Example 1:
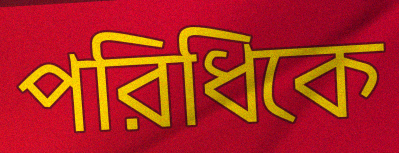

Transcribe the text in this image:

পরিধিকে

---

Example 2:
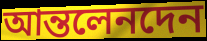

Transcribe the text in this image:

আন্তলেনদেন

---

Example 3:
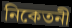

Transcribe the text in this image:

নিকেতনী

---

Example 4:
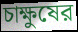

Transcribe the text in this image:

চাক্ষুষের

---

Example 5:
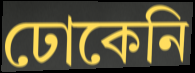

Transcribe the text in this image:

ঢোকেনি